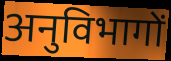
अनुविभागों